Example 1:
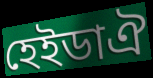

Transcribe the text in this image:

হেইডাঐ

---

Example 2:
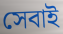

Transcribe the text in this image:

সেবাই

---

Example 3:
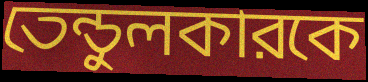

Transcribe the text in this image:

তেন্ডুলকারকে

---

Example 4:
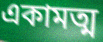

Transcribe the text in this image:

একামত্ম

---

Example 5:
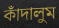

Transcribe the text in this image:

কাঁদালুম